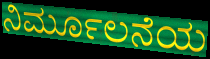
ನಿರ್ಮೂಲನೆಯ